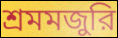
শ্রমমজুরি